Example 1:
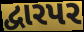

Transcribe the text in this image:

દ્વારપર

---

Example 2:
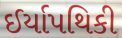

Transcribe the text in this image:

ઈર્યાપથિકી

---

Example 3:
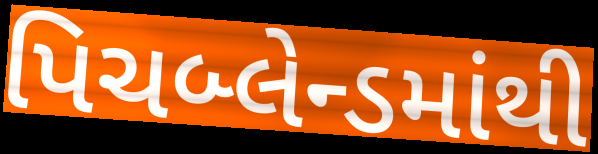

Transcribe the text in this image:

પિચબ્લેન્ડમાંથી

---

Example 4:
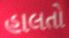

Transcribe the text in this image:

હાલતો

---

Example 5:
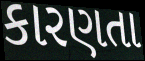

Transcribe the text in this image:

કારણતા